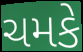
ચમકે